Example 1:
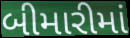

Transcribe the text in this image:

બીમારીમાં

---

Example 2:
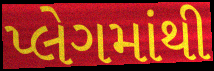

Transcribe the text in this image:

પ્લેગમાંથી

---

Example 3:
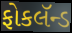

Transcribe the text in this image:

ફોકલૅન્ડ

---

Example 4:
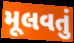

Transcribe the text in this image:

મૂલવતું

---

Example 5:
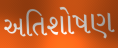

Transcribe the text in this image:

અતિશોષણ